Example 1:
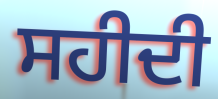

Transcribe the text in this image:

ਸਹੀਦੀ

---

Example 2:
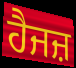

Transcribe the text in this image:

ਹੈਜਜ਼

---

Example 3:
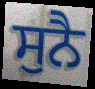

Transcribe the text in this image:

ਸੁਨੈ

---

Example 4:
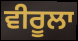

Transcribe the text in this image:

ਵੀਰੂਲਾ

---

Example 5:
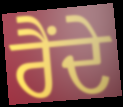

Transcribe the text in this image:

ਰੈਂਦੇ